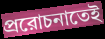
প্ররোচনাতেই